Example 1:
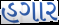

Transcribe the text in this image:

હગાર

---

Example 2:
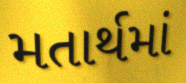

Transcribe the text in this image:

મતાર્થમાં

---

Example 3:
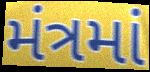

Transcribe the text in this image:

મંત્રમાં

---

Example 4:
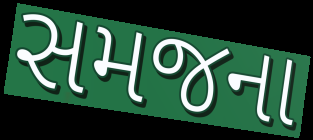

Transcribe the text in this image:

સમજના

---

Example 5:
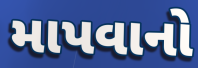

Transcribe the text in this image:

માપવાનો